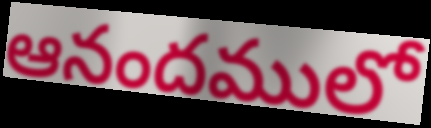
ఆనందములో